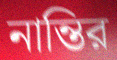
নান্তির